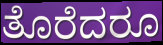
ತೊರೆದರೂ